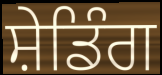
ਸ਼ੇਡਿੰਗ